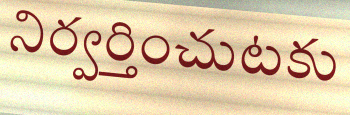
నిర్వర్తించుటకు